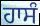
ਹਾਸੰ